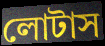
লোটাস